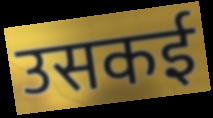
उसकई